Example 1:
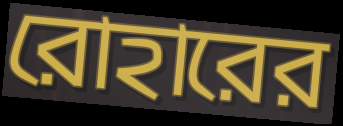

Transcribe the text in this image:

রোহারের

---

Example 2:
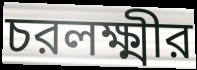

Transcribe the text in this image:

চরলক্ষ্মীর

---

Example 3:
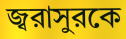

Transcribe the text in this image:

জ্বরাসুরকে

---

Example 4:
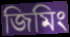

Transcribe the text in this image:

জিমিং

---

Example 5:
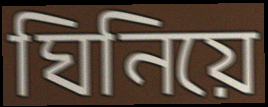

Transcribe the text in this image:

ঘিনিয়ে